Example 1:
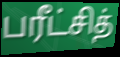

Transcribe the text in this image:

பரீட்சித்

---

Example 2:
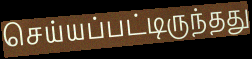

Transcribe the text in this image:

செய்யப்பட்டிருந்தது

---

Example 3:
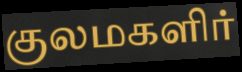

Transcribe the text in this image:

குலமகளிர்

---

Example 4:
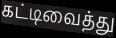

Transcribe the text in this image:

கட்டிவைத்து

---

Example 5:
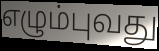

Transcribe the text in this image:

எழும்புவது